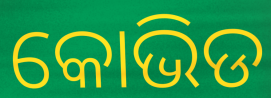
କୋଭିଡ